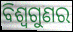
ବିଶ୍ୱଗୁଣର